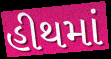
હીથમાં